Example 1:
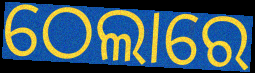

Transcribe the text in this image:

ଠେଲାରେ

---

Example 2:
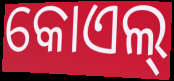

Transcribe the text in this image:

କୋଏଲ୍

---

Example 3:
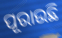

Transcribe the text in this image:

ପୂରାଉଛି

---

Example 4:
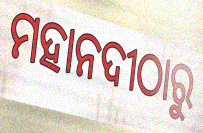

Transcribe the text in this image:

ମହାନଦୀଠାରୁ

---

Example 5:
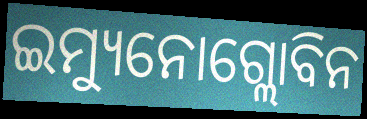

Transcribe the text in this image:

ଇମ୍ୟୁନୋଗ୍ଲୋବିନ